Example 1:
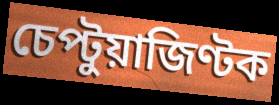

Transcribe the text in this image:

চেপ্টুয়াজিণ্টক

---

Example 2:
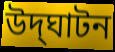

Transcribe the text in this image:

উদ্‌ঘাটন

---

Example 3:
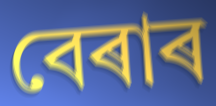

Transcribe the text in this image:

বেৰাৰ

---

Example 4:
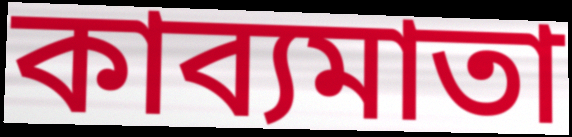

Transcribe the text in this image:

কাব্যমাতা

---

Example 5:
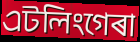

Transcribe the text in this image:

এটলিংগেৰা